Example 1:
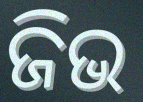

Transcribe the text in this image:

ଜିଭ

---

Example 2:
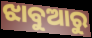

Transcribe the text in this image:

ଝାବୁଆରୁ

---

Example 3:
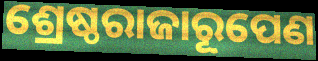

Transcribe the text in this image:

ଶ୍ରେଷ୍ଠରାଜାରୂପେଣ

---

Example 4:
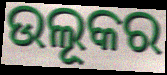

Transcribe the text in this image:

ଉଲୂକର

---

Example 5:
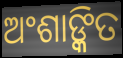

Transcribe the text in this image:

ଅଂଶାଙ୍କିତ